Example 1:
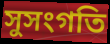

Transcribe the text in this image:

সুসংগতি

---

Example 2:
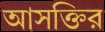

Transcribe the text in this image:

আসক্তির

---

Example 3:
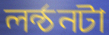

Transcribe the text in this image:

লন্ঠনটা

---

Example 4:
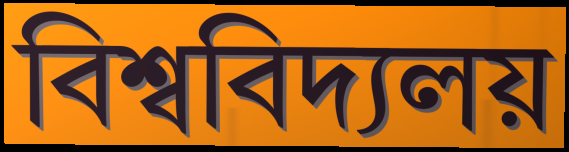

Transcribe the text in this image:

বিশ্ববিদ্যলয়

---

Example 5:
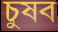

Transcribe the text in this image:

চুষব